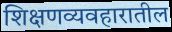
शिक्षणव्यवहारातील